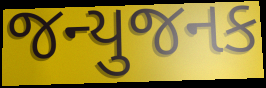
જન્યુજનક